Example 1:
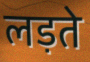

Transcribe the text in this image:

लड़ते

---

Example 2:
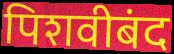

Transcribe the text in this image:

पिशवीबंद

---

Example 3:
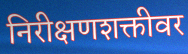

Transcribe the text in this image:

निरीक्षणशक्तीवर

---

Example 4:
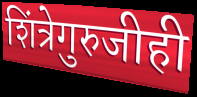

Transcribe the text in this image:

शिंत्रेगुरुजीही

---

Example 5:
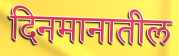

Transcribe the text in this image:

दिनमानातील